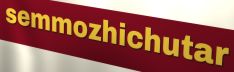
semmozhichutar